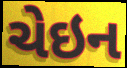
ચેઇન